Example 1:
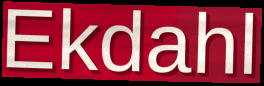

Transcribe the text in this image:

Ekdahl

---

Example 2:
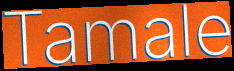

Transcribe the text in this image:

Tamale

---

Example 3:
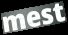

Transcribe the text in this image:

mest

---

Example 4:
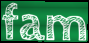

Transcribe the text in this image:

fam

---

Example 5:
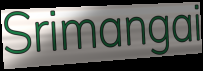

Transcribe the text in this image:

Srimangai